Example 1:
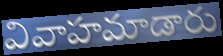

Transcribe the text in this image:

వివాహమాడారు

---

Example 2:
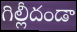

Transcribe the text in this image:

గిల్లీదండా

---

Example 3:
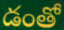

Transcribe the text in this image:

డంతో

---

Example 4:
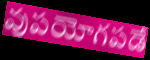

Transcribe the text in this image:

వుపయోగపడే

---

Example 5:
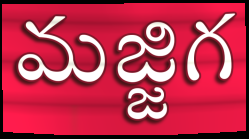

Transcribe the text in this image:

మజ్జిగ